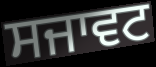
ਸਜਾਵਟ